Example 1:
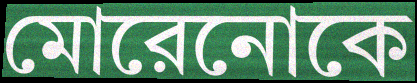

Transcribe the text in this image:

মোরেনোকে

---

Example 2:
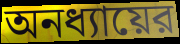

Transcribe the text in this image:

অনধ্যায়ের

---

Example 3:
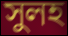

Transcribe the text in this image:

সুলহ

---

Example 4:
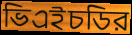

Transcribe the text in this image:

ভিএইচডির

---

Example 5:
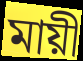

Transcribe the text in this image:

মায়ী